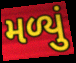
મળ્યું